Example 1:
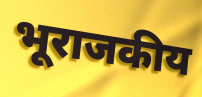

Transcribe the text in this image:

भूराजकीय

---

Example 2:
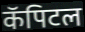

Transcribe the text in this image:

कॅपिटल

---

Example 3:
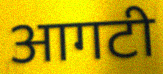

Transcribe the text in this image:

आगटी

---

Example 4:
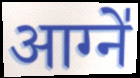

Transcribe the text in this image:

आग्ने॑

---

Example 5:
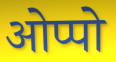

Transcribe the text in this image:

ओप्पो